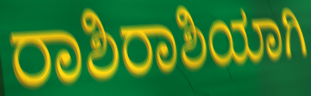
ರಾಶಿರಾಶಿಯಾಗಿ